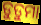
ଡୁଡୁମା